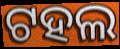
ଟହଲ